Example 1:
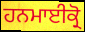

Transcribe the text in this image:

ਹਨਮਾਈਕ੍ਰੋ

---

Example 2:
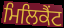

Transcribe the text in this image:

ਮਿਲਿਕੈਂਟ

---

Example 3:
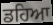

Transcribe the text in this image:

ਡਹਿਆ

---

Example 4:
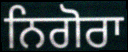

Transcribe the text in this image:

ਨਿਗੋਰਾ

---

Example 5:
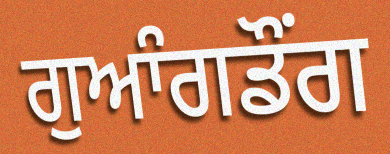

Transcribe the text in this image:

ਗੁਆੰਗਡੌਂਗ